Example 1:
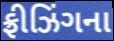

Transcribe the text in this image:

ફ્રીઝિંગના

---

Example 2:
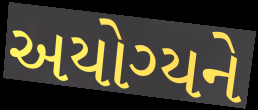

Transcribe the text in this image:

અયોગ્યને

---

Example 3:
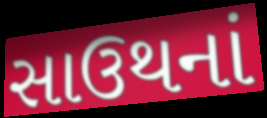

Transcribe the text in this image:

સાઉથનાં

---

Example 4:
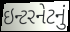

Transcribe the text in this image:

ઇન્ટરનેટનું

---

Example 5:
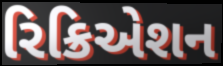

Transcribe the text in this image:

રિક્રિએશન